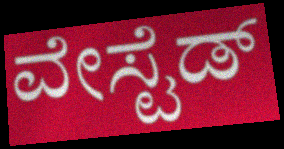
ವೇಸ್ಟೆಡ್